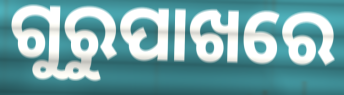
ଗୁରୁପାଖରେ